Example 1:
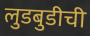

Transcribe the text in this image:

लुडबुडीची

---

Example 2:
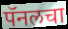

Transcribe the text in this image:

पॅनलचा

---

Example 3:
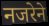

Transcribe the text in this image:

नजरेने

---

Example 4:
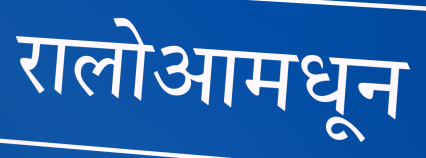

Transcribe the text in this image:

रालोआमधून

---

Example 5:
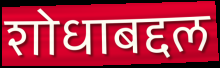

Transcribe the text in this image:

शोधाबद्दल